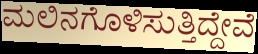
ಮಲಿನಗೊಳಿಸುತ್ತಿದ್ದೇವೆ